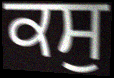
ਕਸੁ